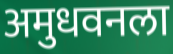
अमुधवनला